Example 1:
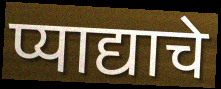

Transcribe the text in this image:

प्याद्याचे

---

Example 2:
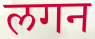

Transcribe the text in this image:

लगन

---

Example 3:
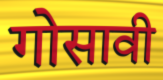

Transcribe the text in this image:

गोसावी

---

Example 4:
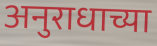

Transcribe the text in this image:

अनुराधाच्या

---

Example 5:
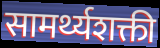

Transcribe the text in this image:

सामर्थ्यशक्ती